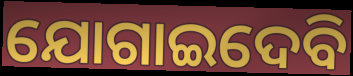
ଯୋଗାଇଦେବି